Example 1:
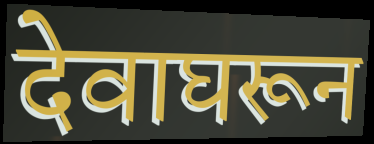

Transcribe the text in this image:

देवाघरून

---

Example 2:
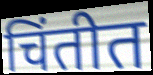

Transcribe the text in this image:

चिंतीत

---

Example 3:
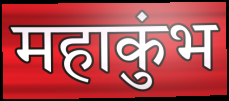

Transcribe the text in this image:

महाकुंभ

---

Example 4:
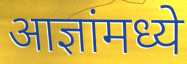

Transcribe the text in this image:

आज्ञांमध्ये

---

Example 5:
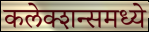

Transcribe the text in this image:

कलेक्शन्समध्ये